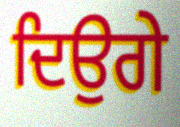
ਦਿਉਗੇ